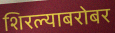
शिरल्याबरोबर